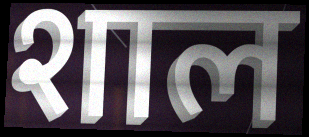
शाल